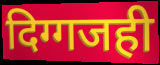
दिग्गजही